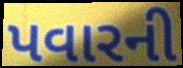
પવારની